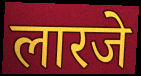
लारजे